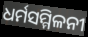
ଧର୍ମସମ୍ମିଳନୀ